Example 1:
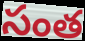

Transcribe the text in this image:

సంత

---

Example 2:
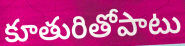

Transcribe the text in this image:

కూతురితోపాటు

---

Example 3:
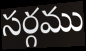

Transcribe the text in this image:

సర్గము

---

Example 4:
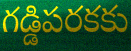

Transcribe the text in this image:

గడ్డిపరకకు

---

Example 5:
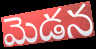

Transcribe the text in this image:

మెడన